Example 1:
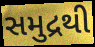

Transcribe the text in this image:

સમુદ્રથી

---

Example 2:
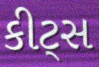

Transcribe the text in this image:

કીટ્સ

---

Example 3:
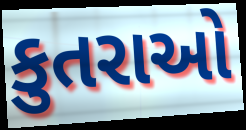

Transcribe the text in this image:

કુતરાઓ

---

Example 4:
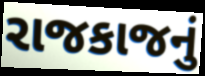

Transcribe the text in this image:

રાજકાજનું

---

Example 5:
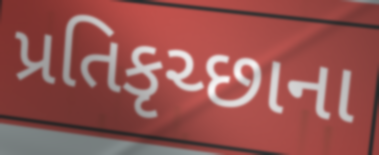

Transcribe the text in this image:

પ્રતિકૃચ્છાના